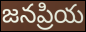
జనప్రియ